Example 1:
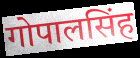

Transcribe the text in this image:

गोपालसिंह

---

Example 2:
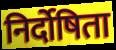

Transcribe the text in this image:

निर्दोषिता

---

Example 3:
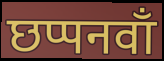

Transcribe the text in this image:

छप्पनवाँ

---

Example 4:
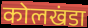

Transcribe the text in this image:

कोलखंडा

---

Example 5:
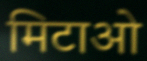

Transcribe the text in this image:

मिटाओ